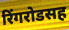
रिंगरोडसह